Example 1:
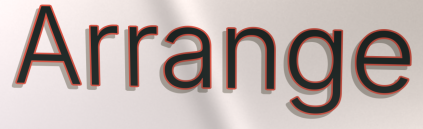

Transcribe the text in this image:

Arrange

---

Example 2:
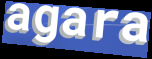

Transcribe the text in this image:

agara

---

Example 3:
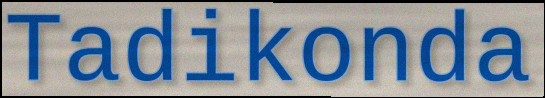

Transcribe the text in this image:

Tadikonda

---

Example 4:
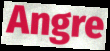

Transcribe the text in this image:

Angre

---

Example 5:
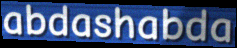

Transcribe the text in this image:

abdashabda